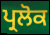
ਪ੍ਰਲੋਕ